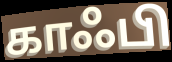
காஃபி